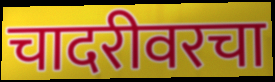
चादरीवरचा